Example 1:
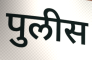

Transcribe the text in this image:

पुलीस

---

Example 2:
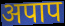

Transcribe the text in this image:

अपाप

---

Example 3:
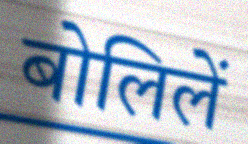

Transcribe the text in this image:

बोलिलें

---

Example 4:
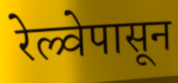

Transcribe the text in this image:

रेल्वेपासून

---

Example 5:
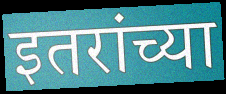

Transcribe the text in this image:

इतरांच्या